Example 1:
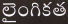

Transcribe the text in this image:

లైంగికత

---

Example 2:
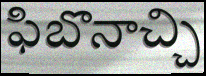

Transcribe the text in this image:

ఫిబొనాచ్చి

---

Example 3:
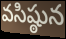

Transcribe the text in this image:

వసిష్ఠున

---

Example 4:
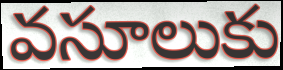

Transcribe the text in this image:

వసూలుకు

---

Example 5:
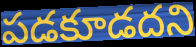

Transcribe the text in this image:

పడకూడదని